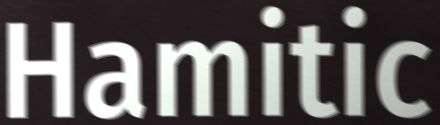
Hamitic